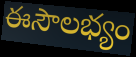
ఈసౌలభ్యం